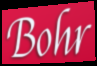
Bohr